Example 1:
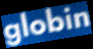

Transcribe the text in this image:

globin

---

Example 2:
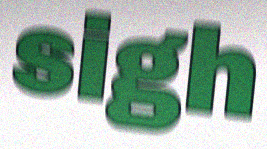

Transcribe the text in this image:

sigh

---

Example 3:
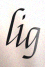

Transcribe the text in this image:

lig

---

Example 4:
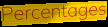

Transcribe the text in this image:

Percentages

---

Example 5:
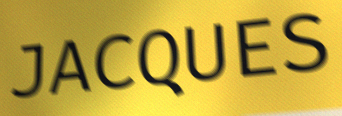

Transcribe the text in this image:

JACQUES